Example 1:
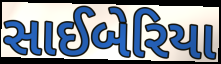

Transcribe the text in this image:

સાઈબેરિયા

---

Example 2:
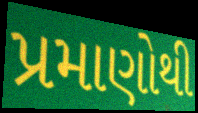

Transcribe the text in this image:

પ્રમાણોથી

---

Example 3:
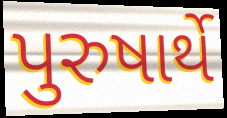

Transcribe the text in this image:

પુરુષાર્થે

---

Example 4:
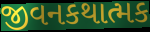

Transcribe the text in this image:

જીવનકથાત્મક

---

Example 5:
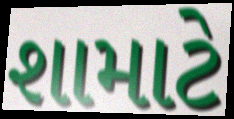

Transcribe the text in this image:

શામાટે